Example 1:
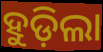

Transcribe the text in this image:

ହୁଡ଼ିଲା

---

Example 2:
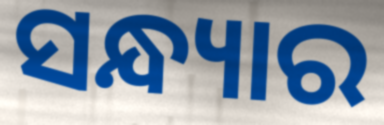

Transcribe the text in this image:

ସନ୍ଧ୍ୟାର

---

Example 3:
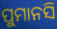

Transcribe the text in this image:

ପୁମାନସି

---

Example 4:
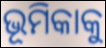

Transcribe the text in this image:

ଭୂମିକାକୁ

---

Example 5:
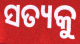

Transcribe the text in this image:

ସତ୍ୟକୁ